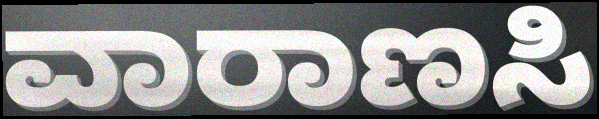
ವಾರಾಣಸಿ